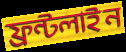
ফ্রন্টলাইন